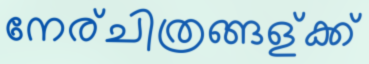
നേര്ചിത്രങ്ങള്ക്ക്